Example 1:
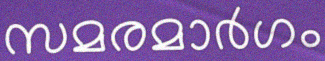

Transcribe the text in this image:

സമരമാർഗം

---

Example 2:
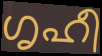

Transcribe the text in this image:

ഗൃഹീ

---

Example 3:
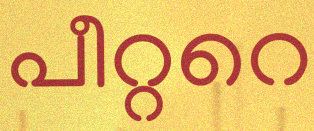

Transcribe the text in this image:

പീറ്ററെ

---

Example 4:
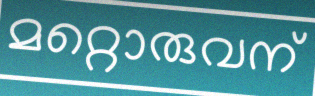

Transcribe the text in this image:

മറ്റൊരുവന്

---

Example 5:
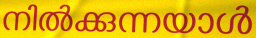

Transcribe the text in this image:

നിൽക്കുന്നയാൾ